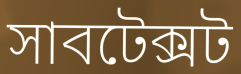
সাবটেক্সট